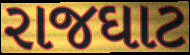
રાજઘાટ